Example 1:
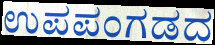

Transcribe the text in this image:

ಉಪಪಂಗಡದ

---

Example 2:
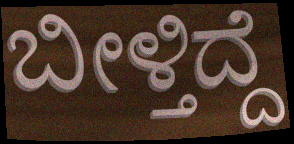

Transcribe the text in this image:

ಬೀಳ್ತಿದ್ದೆ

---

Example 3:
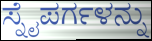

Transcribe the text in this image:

ಸ್ನೈಪರ್ಗಳನ್ನು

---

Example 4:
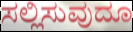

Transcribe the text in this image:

ಸಲ್ಲಿಸುವುದೂ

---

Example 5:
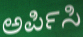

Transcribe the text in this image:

ಅರ್ಪಿಸಿ